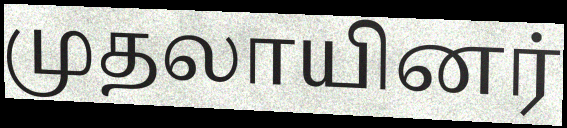
முதலாயினர்